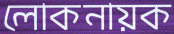
লোকনায়ক